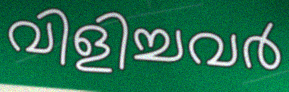
വിളിച്ചവർ